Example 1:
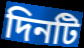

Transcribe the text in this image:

দিনটি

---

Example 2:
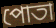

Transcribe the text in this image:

পোতা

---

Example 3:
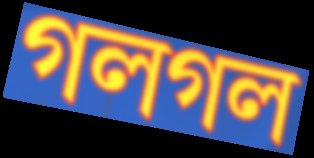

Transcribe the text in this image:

গলগল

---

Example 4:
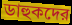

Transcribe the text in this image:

ডাহুকদের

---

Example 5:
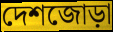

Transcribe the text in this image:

দেশজোড়া